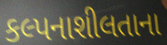
કલ્પનાશીલતાના